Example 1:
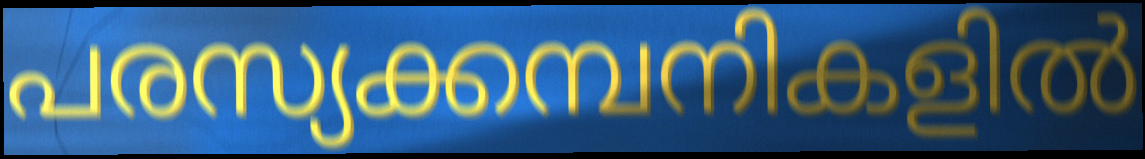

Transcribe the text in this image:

പരസ്യക്കമ്പനികളിൽ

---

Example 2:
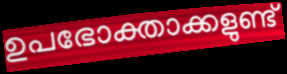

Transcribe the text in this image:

ഉപഭോക്താക്കളുണ്ട്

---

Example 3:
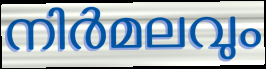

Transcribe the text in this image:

നിർമലവും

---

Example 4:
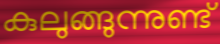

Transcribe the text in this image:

കുലുങ്ങുന്നുണ്ട്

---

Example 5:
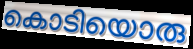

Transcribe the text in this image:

കൊടിയൊരു